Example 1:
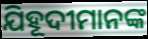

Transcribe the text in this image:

ଯିହୂଦୀମାନଙ୍କ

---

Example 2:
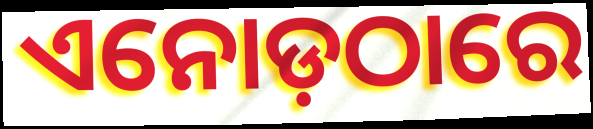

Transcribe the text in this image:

ଏନୋଡ଼ଠାରେ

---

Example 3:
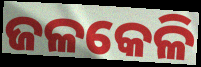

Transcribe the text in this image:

ଜଳକେଳି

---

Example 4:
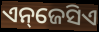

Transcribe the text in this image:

ଏନ୍‌ଜେସିଏ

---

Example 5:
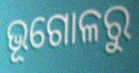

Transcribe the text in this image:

ଭୂଗୋଳରୁ